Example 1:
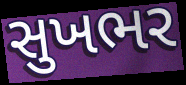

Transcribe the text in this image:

સુખભર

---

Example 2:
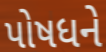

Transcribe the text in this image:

પોષધને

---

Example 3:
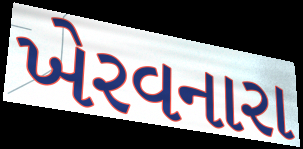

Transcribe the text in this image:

ખેરવનારા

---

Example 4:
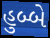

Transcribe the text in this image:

હુબ્બે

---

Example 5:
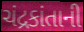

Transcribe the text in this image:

ચંદ્રકાંતાની